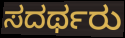
ಸದರ್ಥರು